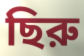
ছিরু